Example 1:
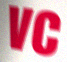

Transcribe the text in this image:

vc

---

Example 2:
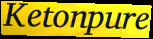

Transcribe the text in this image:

Ketonpure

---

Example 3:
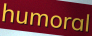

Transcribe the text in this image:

humoral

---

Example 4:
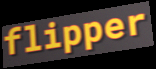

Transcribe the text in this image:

flipper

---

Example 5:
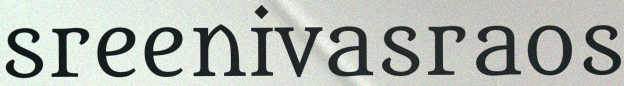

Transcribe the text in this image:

sreenivasraos